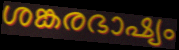
ശങ്കരഭാഷ്യം